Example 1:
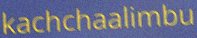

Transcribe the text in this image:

kachchaalimbu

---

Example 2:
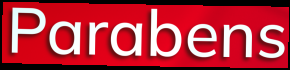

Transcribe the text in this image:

Parabens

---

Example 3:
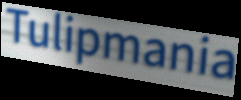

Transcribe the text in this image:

Tulipmania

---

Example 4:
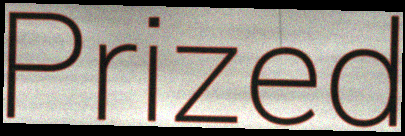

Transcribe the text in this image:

Prized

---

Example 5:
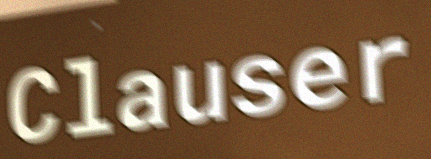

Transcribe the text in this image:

Clauser